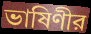
ভাষিণীর